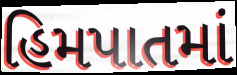
હિમપાતમાં